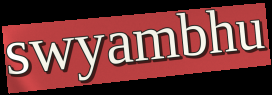
swyambhu